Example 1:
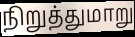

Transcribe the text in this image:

நிறுத்துமாறு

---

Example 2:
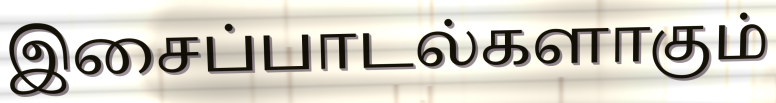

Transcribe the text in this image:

இசைப்பாடல்களாகும்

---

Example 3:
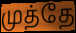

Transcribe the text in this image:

முத்தே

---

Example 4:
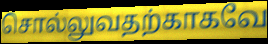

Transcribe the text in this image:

சொல்லுவதற்காகவே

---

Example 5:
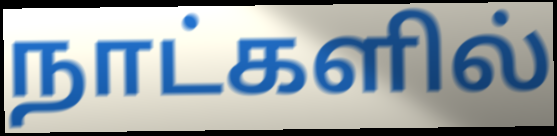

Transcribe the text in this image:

நாட்களில்